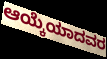
ಆಯ್ಕೆಯಾದವರ